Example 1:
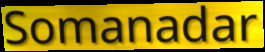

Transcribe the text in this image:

Somanadar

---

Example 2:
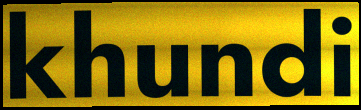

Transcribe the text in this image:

khundi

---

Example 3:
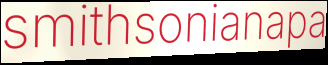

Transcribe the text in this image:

smithsonianapa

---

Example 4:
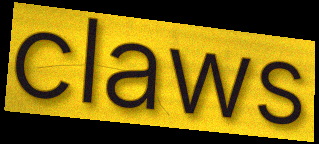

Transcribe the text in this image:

claws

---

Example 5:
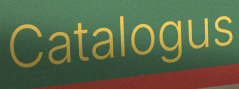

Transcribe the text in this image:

Catalogus